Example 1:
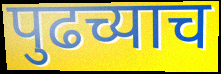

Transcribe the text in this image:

पुढच्याच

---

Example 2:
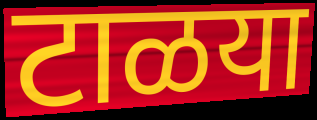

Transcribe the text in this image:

टाळया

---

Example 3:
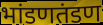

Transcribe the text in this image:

भांडणतंडण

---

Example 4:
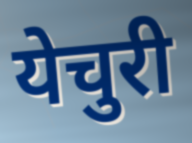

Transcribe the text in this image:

येचुरी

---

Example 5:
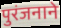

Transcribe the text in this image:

पुरंजनाने